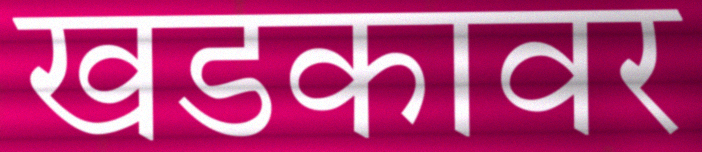
खडकावर